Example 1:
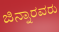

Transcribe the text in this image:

ಜಿನ್ನಾರವರು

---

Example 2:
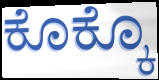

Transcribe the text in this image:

ಕೊಕ್ಕೊ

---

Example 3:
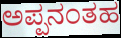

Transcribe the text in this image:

ಅಪ್ಪನಂತಹ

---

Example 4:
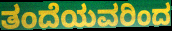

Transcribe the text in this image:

ತಂದೆಯವರಿಂದ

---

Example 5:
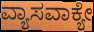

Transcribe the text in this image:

ವ್ಯಾಸವಾಕ್ಯೇ